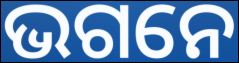
ଭଗନେ